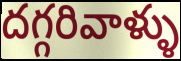
దగ్గరివాళ్ళు